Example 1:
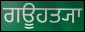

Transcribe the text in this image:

ਗਊਹਤ੍ਯਾ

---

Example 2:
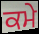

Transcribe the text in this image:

ਕਮੇ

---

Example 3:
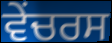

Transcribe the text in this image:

ਵੇਂਚਰਸ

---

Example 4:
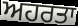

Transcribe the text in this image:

ਅਹਰਤਾ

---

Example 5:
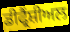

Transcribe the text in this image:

ਡੀਫ੍ਰੈਂਸ਼ੀਅਲ